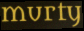
murty